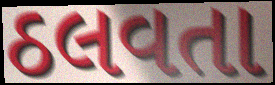
ઠલવતા